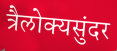
त्रैलोक्यसुंदर